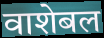
वाशेबल